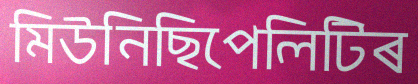
মিউনিছিপেলিটিৰ